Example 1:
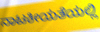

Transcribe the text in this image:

ನಾಟಕೀಯತೆಯಲ್ಲಿ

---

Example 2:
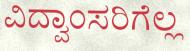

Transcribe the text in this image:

ವಿದ್ವಾಂಸರಿಗೆಲ್ಲ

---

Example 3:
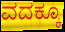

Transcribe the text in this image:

ವದಕ್ಕೂ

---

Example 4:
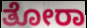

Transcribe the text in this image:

ತೋರಾ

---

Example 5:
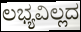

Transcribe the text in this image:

ಲಭ್ಯವಿಲ್ಲದ